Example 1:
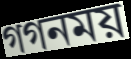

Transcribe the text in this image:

গগনময়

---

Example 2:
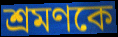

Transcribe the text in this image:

শ্রমণকে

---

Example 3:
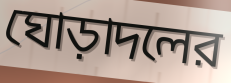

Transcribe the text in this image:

ঘোড়াদলের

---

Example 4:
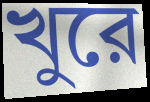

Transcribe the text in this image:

খুরে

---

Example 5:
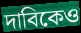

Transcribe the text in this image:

দাবিকেও